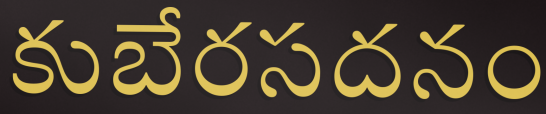
కుబేరసదనం